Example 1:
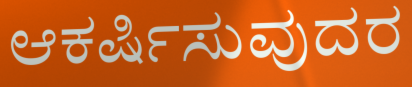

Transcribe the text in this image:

ಆಕರ್ಷಿಸುವುದರ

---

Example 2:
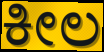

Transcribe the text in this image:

ಕೀಲ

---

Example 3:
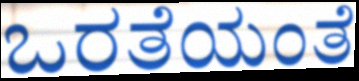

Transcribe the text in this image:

ಒರತೆಯಂತೆ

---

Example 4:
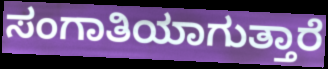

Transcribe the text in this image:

ಸಂಗಾತಿಯಾಗುತ್ತಾರೆ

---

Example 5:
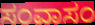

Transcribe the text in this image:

ಸಂವಾಸಂ